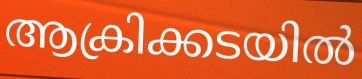
ആക്രിക്കടയിൽ